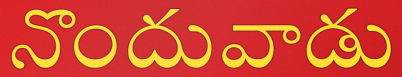
నొందువాడు